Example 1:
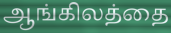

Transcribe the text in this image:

ஆங்கிலத்தை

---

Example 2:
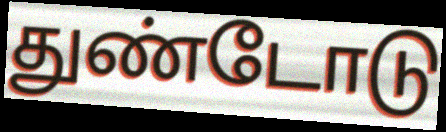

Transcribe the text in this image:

துண்டோடு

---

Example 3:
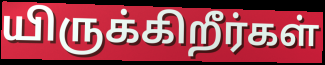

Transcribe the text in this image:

யிருக்கிறீர்கள்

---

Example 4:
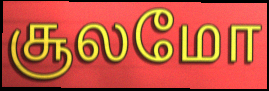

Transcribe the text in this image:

சூலமோ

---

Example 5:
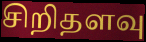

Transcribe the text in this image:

சிறிதளவு